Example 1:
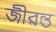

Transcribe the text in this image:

জীৱন্ত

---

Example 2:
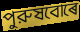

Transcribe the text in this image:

পুৰুষবোৰে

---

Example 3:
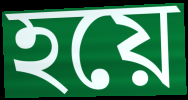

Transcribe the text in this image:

হয়ে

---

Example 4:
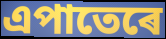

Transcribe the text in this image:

এপাতেৰে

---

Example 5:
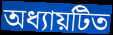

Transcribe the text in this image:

অধ্যায়টিত